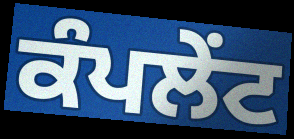
ਕੰਪਲੇਂਟ